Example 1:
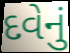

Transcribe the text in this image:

દવેનું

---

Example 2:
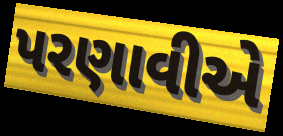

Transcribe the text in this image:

પરણાવીએ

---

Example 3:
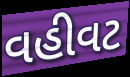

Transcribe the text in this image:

વહીવટ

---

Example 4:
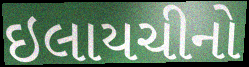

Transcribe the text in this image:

ઇલાયચીનો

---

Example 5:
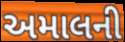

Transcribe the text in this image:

અમાલની